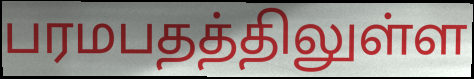
பரமபதத்திலுள்ள